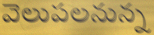
వెలుపలనున్న